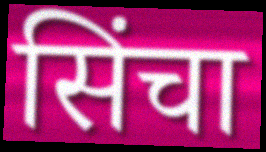
सिंचा